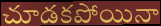
చూడకపోయినా